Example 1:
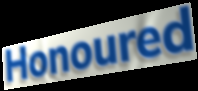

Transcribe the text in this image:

Honoured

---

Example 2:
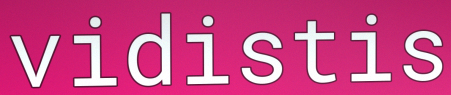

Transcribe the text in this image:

vidistis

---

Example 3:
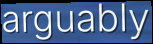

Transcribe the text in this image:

arguably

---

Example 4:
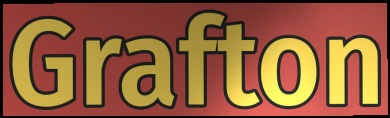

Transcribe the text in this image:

Grafton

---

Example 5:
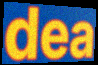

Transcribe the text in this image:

dea